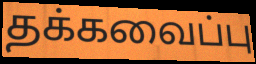
தக்கவைப்பு